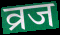
व्रज